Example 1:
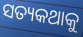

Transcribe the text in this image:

ସତ୍ୟକଥାକୁ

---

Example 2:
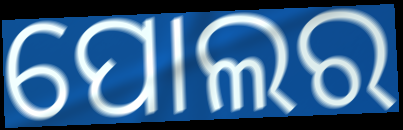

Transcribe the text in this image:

ପୋଲର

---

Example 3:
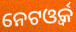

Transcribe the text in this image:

ନେଟଓ୍ବର୍କ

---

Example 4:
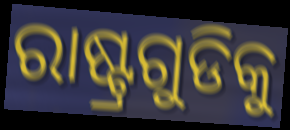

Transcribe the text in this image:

ରାଷ୍ଟ୍ରଗୁଡିକୁ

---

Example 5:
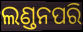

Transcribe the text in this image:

ଲଣ୍ଡନପରି